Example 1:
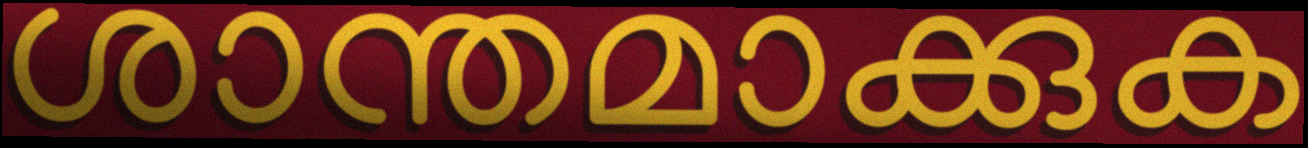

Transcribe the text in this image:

ശാന്തമാക്കുക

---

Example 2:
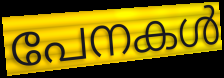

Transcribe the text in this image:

പേനകൾ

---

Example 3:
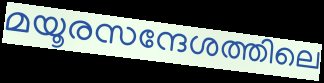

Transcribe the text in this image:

മയൂരസന്ദേശത്തിലെ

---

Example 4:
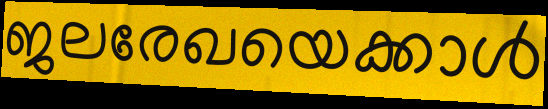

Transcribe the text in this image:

ജലരേഖയെക്കാൾ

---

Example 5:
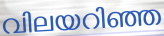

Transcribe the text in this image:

വിലയറിഞ്ഞ